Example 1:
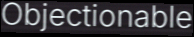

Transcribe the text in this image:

Objectionable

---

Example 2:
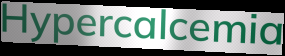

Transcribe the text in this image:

Hypercalcemia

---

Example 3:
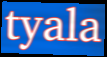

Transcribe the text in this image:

tyala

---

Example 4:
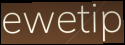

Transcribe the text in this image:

ewetip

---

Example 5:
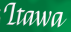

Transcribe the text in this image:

Itawa